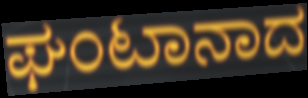
ಘಂಟಾನಾದ